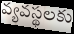
వ్యవస్థలకు